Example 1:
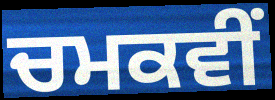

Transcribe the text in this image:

ਚਮਕਵੀਂ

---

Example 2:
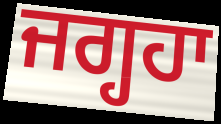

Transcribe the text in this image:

ਜਗ੍ਹਹਾ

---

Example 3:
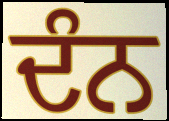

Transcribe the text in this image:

ਦੰਨ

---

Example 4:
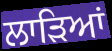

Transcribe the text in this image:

ਲਾੜਿਆਂ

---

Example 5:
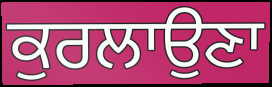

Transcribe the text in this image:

ਕੁਰਲਾਉਣਾ